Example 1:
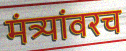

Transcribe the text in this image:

मंत्र्यांवरच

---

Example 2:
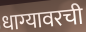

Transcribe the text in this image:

धाग्यावरची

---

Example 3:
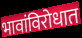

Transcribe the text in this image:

भावांविरोधात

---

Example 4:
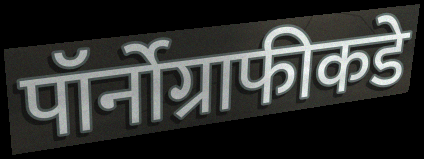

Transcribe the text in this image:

पॉर्नोग्राफीकडे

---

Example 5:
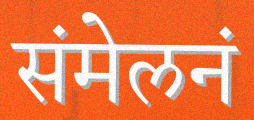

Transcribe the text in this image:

संमेलनं